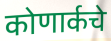
कोणार्कचे